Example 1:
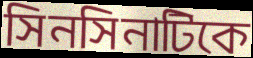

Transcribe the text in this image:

সিনসিনাটিকে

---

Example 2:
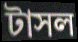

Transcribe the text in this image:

টাসল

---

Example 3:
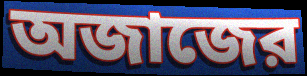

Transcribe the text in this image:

অজাজের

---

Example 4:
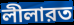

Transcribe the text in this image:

লীলারত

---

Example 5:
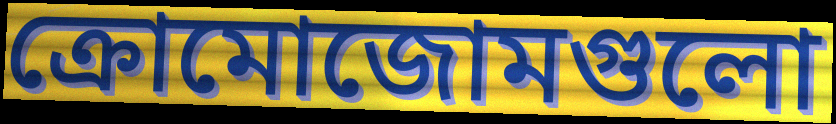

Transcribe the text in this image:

ক্রোমোজোমগুলো